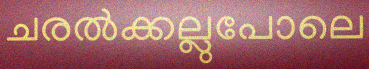
ചരൽക്കല്ലുപോലെ